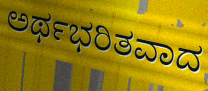
ಅರ್ಥಭರಿತವಾದ